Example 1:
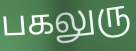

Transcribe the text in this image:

பகலுரு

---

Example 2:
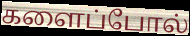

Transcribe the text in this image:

களைப்போல்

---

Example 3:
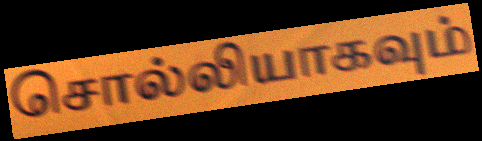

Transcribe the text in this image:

சொல்லியாகவும்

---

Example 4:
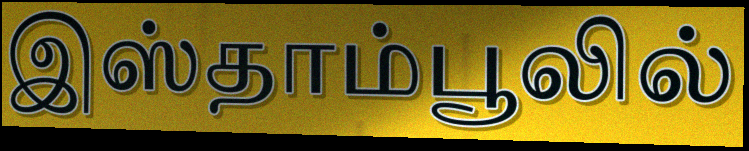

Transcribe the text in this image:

இஸ்தாம்பூலில்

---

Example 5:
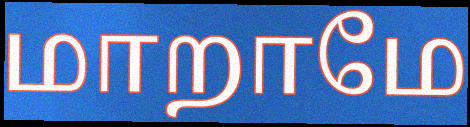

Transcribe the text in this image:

மாறாமே